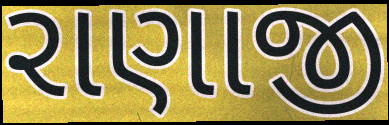
રાણાજી